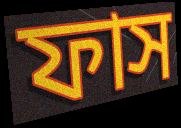
ফাস